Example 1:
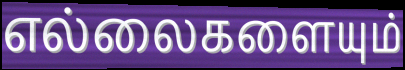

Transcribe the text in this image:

எல்லைகளையும்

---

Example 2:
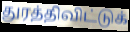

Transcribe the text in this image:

துரத்திவிட்டுக்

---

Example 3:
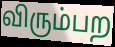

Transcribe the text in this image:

விரும்பற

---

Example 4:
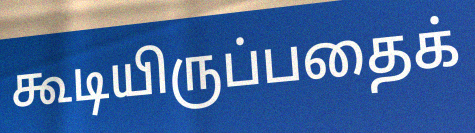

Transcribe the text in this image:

கூடியிருப்பதைக்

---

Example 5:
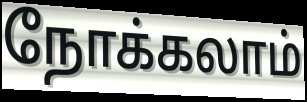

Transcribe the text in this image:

நோக்கலாம்